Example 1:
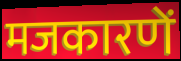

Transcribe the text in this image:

मजकारणें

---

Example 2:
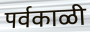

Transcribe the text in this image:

पर्वकाळी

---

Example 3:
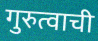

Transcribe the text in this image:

गुरुत्वाची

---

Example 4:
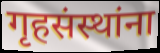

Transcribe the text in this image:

गृहसंस्थांना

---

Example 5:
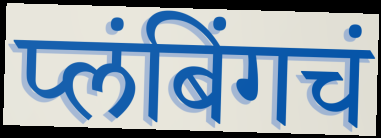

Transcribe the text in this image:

प्लंबिंगचं